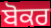
ਬੋਕਰ